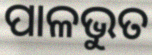
ପାଳଭୁତ